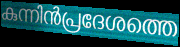
കുന്നിൻപ്രദേശത്തെ